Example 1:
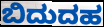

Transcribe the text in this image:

ಬಿದುದಹ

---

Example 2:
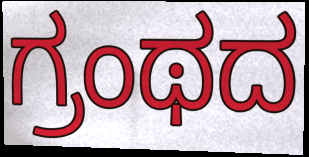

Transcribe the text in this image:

ಗ್ರಂಥದ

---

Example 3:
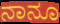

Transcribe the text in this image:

ನಾನೂ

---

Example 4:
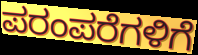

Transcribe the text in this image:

ಪರಂಪರೆಗಳಿಗೆ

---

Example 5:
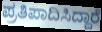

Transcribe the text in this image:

ಪ್ರತಿಪಾದಿಸಿದ್ದಾರೆ